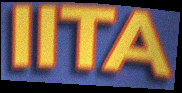
IITA